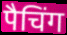
पैचिंग